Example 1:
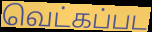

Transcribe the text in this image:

வெட்கப்பட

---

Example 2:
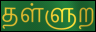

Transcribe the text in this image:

தள்ளுற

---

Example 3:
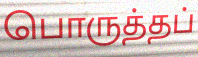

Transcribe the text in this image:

பொருத்தப்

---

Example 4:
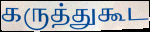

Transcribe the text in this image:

கருத்துகூட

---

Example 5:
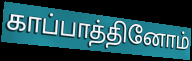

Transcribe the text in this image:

காப்பாத்தினோம்